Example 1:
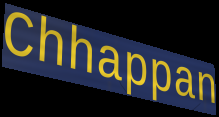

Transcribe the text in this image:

Chhappan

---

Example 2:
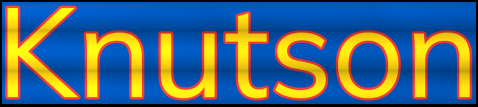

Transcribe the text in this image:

Knutson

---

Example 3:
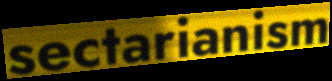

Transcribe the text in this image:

sectarianism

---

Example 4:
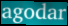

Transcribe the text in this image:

agodar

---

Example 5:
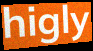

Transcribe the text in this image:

higly